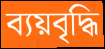
ব্যয়বৃদ্ধি